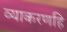
व्याकरणहि